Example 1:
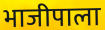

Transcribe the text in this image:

भाजीपाला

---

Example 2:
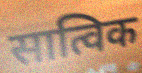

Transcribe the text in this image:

सात्विक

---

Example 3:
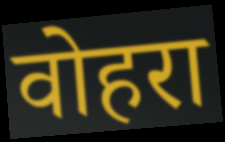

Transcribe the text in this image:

वोहरा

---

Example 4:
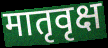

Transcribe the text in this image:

मातृवृक्ष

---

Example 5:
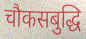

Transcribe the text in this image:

चौकसबुद्धि